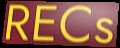
RECs